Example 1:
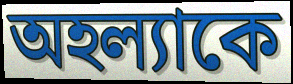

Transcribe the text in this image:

অহল্যাকে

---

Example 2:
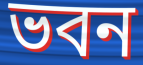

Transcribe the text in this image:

ভবন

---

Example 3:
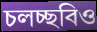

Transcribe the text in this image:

চলচ্ছবিও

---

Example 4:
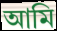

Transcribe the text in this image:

আমি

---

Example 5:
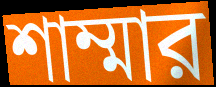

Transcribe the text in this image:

শাম্মার